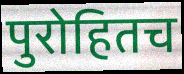
पुरोहितच